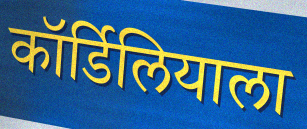
कॉर्डिलियाला